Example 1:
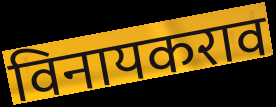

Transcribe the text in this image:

विनायकराव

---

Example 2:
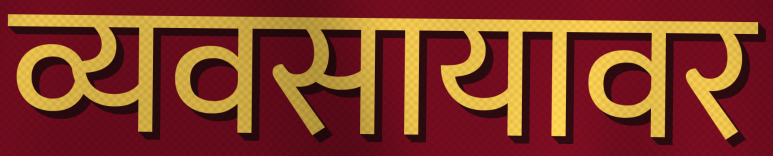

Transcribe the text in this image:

व्यवसायावर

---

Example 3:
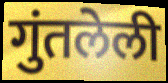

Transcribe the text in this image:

गुंतलेली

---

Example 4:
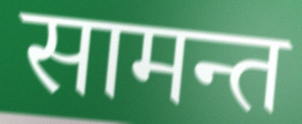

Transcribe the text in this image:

सामन्त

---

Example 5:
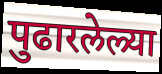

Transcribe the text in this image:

पुढारलेल्या